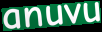
anuvu